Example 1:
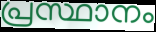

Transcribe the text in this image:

പ്രസ്ഥാനം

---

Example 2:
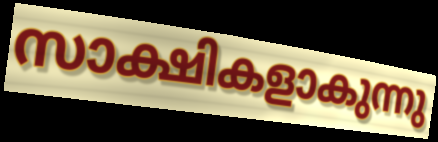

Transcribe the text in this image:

സാക്ഷികളാകുന്നു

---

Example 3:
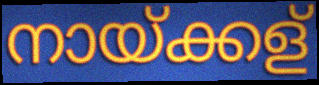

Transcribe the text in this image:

നായ്ക്കള്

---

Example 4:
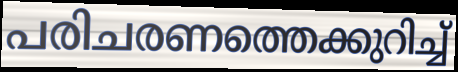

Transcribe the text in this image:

പരിചരണത്തെക്കുറിച്ച്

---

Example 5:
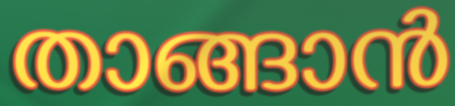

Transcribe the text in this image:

താങ്ങാൻ